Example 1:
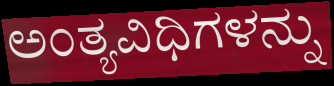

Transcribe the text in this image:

ಅಂತ್ಯವಿಧಿಗಳನ್ನು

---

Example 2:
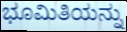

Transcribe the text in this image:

ಭೂಮಿತಿಯನ್ನು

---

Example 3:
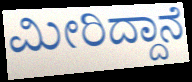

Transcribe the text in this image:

ಮೀರಿದ್ದಾನೆ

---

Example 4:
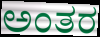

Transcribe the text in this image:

ಅಂತರ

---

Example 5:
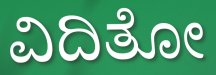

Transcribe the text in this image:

ವಿದಿತೋ